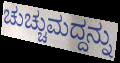
ಚುಚ್ಚುಮದ್ದನ್ನು